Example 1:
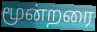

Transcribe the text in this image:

மூன்றரை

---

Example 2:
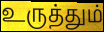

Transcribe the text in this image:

உருத்தும்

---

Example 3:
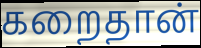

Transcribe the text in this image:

கறைதான்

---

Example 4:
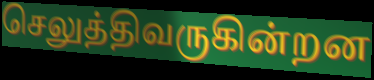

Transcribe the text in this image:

செலுத்திவருகின்றன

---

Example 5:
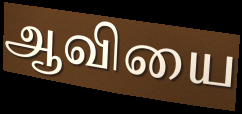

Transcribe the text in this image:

ஆவியை